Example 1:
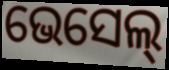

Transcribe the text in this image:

ଭେସେଲ୍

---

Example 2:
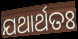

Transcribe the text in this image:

ଯଥାର୍ଥତଃ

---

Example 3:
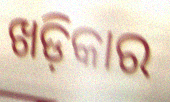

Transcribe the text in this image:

ଖଡ଼ିକାର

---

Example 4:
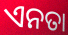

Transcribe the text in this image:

ଏନତା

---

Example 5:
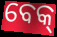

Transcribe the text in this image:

ବେକ୍